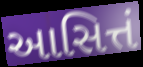
આસિત્તં